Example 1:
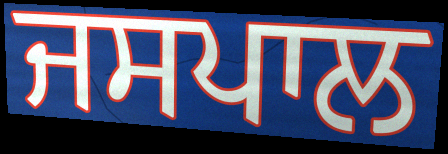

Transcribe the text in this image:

ਜਸਪਾਲ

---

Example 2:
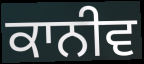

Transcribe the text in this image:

ਕਾਨੀਵ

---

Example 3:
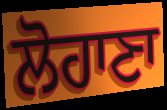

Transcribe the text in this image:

ਲੋਹਾਣਾ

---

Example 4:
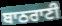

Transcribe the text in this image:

ਬਾਠਰਾਣੀ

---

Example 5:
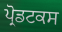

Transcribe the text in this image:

ਪ੍ਰੋਡਟਕਸ